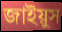
জাইয়ুস